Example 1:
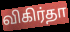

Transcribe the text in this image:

விகிர்தா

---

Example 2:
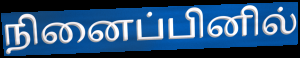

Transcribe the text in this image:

நினைப்பினில்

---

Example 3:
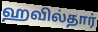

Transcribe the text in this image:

ஹவில்தார்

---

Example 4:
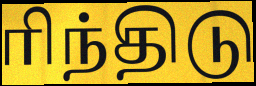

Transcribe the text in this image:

ரிந்திடு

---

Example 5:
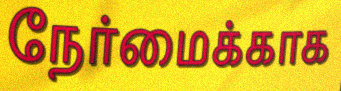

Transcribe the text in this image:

நேர்மைக்காக